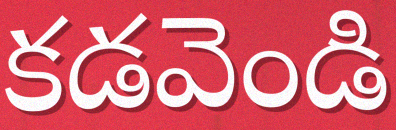
కడవెండి